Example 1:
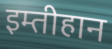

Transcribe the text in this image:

इम्तीहान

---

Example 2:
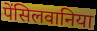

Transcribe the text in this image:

पेंसिलवानिया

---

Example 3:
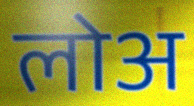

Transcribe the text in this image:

लोअ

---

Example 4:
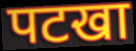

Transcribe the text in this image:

पटखा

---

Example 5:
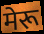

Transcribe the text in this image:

मेरू